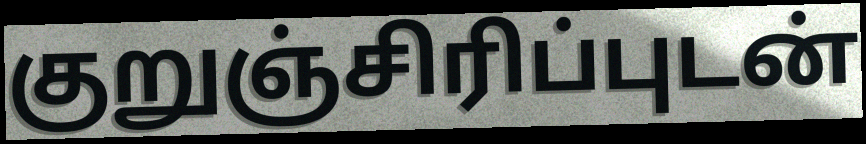
குறுஞ்சிரிப்புடன்